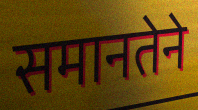
समानतेने